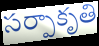
సర్పాకృతి